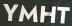
YMHT